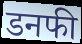
डनफी